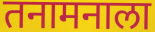
तनामनाला